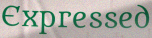
Expressed